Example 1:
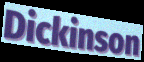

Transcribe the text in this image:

Dickinson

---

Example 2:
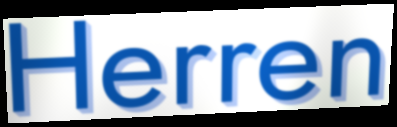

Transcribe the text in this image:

Herren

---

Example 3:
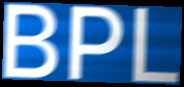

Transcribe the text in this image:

BPL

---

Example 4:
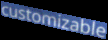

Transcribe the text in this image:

customizable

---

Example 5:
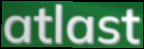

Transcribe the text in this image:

atlast